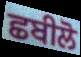
ਛਬੀਲੋ